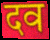
दव